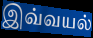
இவ்வயல்